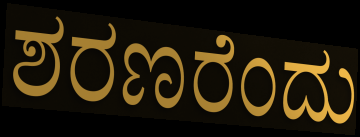
ಶರಣರೆಂದು